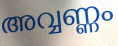
അവ്വണ്ണം